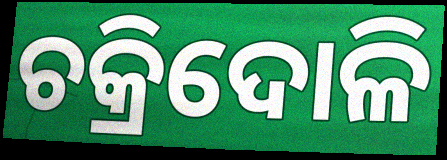
ଚକ୍ରିଦୋଳି